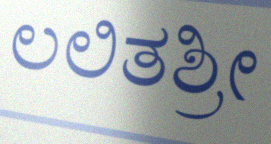
ಲಲಿತಶ್ರೀ